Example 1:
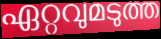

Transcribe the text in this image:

ഏറ്റവുമടുത്ത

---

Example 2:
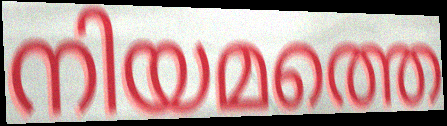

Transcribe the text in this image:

നിയമത്തെ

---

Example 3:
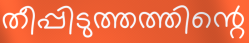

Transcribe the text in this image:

തീപ്പിടുത്തത്തിന്റെ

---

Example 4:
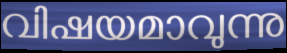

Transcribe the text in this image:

വിഷയമാവുന്നു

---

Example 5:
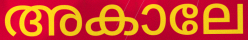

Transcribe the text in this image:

അകാലേ